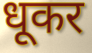
धूकर